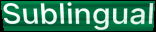
Sublingual